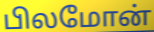
பிலமோன்